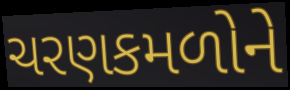
ચરણકમળોને